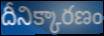
దీనిక్కారణం